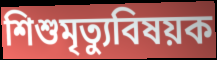
শিশুমৃত্যুবিষয়ক